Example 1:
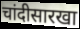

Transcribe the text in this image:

चांदीसारखा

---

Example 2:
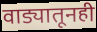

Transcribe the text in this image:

वाड्यातूनही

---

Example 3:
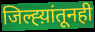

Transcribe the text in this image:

जिल्ह्य़ांतूनही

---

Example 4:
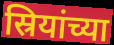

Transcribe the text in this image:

स्रियांच्या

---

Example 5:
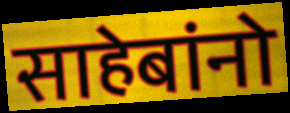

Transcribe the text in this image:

साहेबांनो